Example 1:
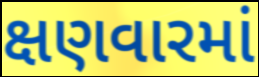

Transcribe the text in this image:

ક્ષણવારમાં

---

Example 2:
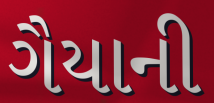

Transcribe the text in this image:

ગૈયાની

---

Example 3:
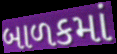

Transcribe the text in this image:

બાળકમાં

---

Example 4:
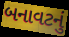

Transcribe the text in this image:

બનાવટનું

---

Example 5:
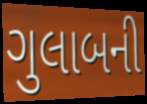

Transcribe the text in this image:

ગુલાબની